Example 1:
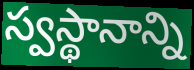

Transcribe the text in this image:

స్వస్థానాన్ని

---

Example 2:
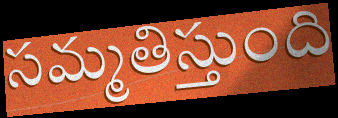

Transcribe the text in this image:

సమ్మతిస్తుంది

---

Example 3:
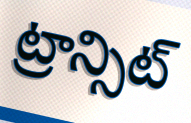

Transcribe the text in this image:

ట్రాన్సిట్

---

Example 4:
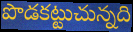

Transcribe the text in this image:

పొడకట్టుచున్నది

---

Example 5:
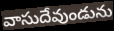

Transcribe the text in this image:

వాసుదేవుండును